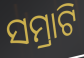
ସମ୍ରାଟି